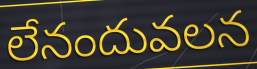
లేనందువలన